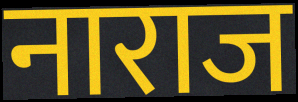
नाराज